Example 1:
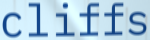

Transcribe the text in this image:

cliffs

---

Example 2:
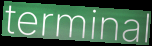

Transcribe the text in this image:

terminal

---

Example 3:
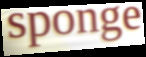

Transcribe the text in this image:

sponge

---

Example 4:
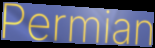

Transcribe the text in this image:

Permian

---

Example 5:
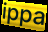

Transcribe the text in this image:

ippa